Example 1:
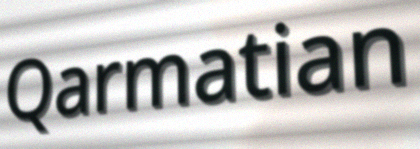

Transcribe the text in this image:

Qarmatian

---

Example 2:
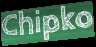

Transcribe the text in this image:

Chipko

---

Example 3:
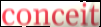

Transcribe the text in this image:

conceit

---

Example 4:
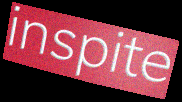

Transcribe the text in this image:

inspite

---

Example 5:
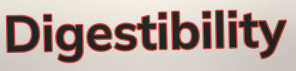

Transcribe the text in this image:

Digestibility